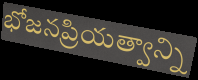
భోజనప్రియత్వాన్ని